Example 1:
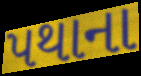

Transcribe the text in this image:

પથાના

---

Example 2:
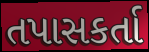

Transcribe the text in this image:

તપાસકર્તા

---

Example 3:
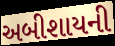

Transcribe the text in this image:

અબીશાયની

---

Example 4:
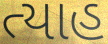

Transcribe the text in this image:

ત્યાહ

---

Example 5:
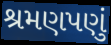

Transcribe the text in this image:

શ્રમણપણું